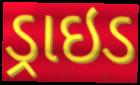
ડ્રાઇડ